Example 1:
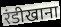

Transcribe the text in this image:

रंडीखाना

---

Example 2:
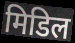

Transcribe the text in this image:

मिडिल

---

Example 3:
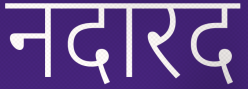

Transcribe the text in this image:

नदारद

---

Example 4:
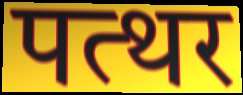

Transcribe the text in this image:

पत्थर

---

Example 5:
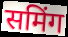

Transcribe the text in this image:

समिंग